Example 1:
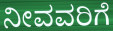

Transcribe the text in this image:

ನೀವವರಿಗೆ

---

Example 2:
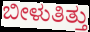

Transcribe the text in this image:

ಬೀಳುತಿತ್ತು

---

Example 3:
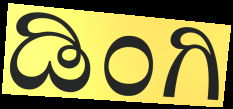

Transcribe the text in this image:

ಡಿಂಗಿ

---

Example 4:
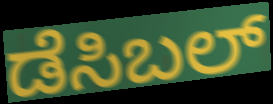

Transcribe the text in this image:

ಡೆಸಿಬಲ್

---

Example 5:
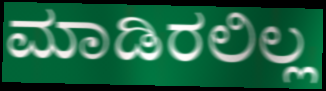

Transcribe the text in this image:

ಮಾಡಿರಲಿಲ್ಲ